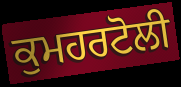
ਕੁਮਹਰਟੋਲੀ